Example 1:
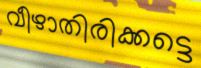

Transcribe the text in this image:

വീഴാതിരിക്കട്ടെ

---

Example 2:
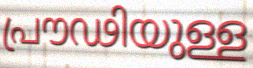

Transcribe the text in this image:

പ്രൗഢിയുള്ള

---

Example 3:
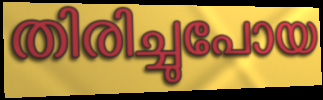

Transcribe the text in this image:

തിരിച്ചുപോയ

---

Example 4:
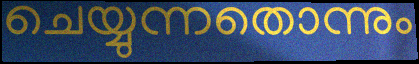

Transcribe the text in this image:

ചെയ്യുന്നതൊന്നും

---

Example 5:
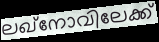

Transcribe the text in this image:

ലഖ്നോവിലേക്ക്